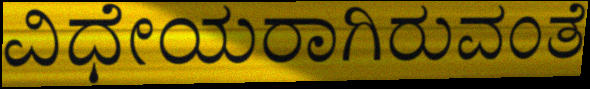
ವಿಧೇಯರಾಗಿರುವಂತೆ